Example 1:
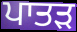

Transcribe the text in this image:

ਪਾਤੜ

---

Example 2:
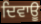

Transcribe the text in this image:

ਦਿਵਾਊ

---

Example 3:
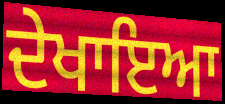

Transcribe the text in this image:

ਦੇਖਾਇਆ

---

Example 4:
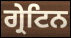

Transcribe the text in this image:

ਗ੍ਰੇਟਿਨ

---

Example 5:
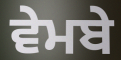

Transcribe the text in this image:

ਵੇਮਬੇ